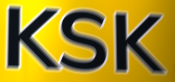
KSK